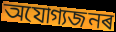
অযোগ্যজনৰ